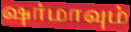
ஷர்மாவும்